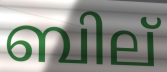
ബില്